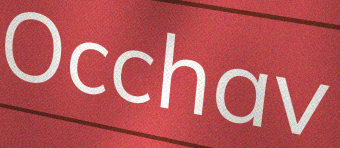
Occhav